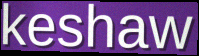
keshaw